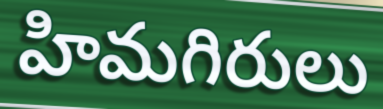
హిమగిరులు